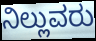
ನಿಲ್ಲುವರು